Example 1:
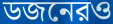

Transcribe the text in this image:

ডজনেরও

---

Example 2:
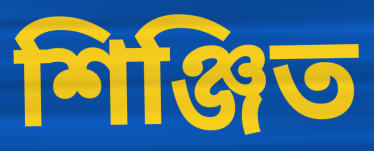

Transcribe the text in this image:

শিঞ্জিত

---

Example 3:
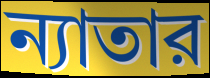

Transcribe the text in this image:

ন্যাতার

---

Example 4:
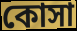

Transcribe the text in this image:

কোসা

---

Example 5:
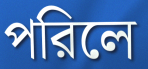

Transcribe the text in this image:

পরিলে